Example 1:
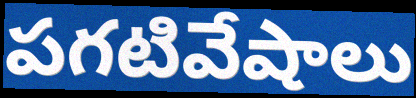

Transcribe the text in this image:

పగటివేషాలు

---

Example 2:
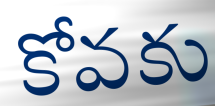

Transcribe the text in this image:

కోవకు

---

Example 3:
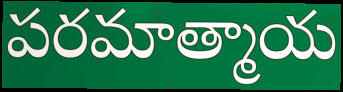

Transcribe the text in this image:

పరమాత్మాయ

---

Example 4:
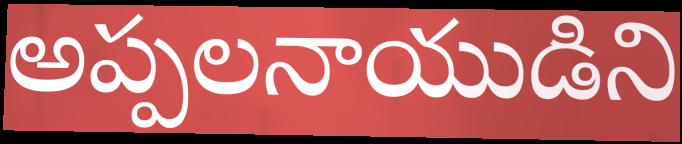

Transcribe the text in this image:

అప్పలనాయుడిని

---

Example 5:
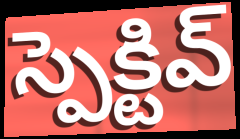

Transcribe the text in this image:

స్పెక్టివ్